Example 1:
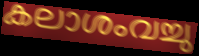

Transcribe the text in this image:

കലാശംവച്ചു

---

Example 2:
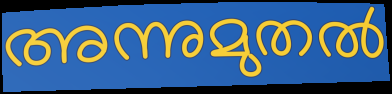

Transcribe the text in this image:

അന്നുമുതൽ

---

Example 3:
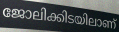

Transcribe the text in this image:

ജോലിക്കിടയിലാണ്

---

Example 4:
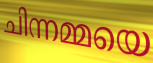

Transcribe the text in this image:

ചിന്നമ്മയെ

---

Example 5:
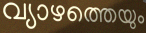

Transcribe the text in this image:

വ്യാഴത്തെയും